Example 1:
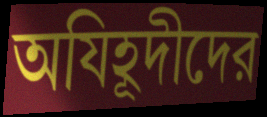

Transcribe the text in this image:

অযিহূদীদের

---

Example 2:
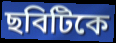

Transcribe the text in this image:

ছবিটিকে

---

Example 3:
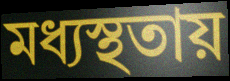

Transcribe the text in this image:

মধ্যস্থতায়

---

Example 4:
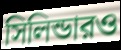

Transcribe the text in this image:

সিলিন্ডারও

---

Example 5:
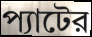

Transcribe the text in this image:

প্যাটের